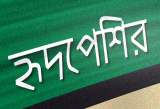
হৃদপেশির